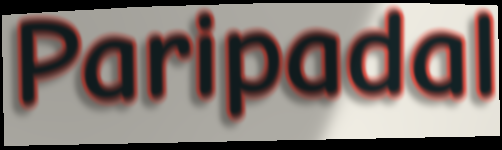
Paripadal